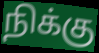
நிக்கு